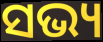
ସଭ୍ୟ